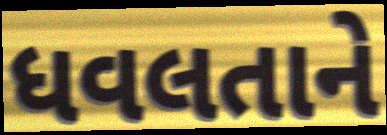
ધવલતાને